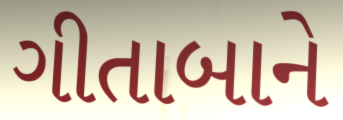
ગીતાબાને